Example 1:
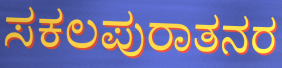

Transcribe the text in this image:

ಸಕಲಪುರಾತನರ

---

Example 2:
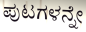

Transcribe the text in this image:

ಪುಟಗಳನ್ನೇ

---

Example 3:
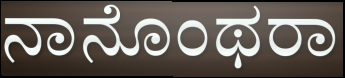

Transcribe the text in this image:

ನಾನೊಂಥರಾ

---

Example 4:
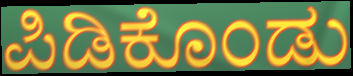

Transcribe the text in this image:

ಪಿಡಿಕೊಂಡು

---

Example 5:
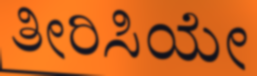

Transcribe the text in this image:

ತೀರಿಸಿಯೇ